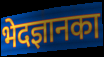
भेदज्ञानका